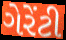
ગેરેંટી